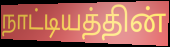
நாட்டியத்தின்